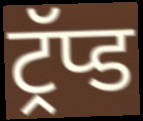
ट्रॅप्ड